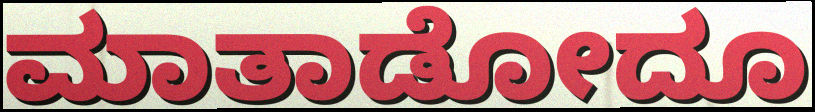
ಮಾತಾಡೋದೂ